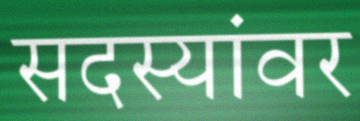
सदस्यांवर